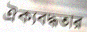
ঐক্যবদ্ধতার